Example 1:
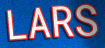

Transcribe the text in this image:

LARS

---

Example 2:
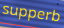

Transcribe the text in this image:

supperb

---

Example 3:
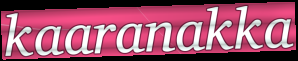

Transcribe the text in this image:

kaaranakka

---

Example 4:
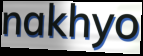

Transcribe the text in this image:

nakhyo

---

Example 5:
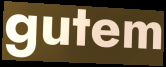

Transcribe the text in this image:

gutem